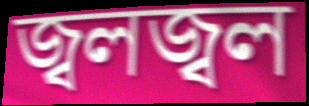
জ্বলজ্বল